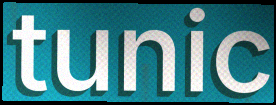
tunic